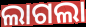
ଲାଗଲା